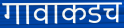
गावाकडच